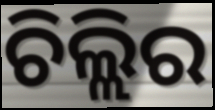
ଚିଲ୍ଲିର